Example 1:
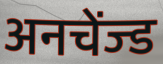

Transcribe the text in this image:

अनचेंज्ड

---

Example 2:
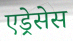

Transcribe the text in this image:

एड्रेसेस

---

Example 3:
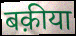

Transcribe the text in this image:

बक़ीया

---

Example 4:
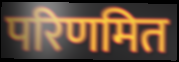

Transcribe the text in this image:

परिणमित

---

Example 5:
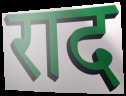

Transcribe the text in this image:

राद